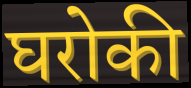
घरोकी